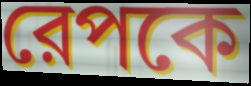
রেপকে